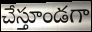
చేస్తూండగా